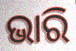
ଭାରି